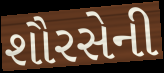
શૌરસેની